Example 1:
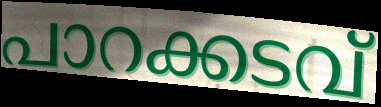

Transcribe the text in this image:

പാറക്കടവ്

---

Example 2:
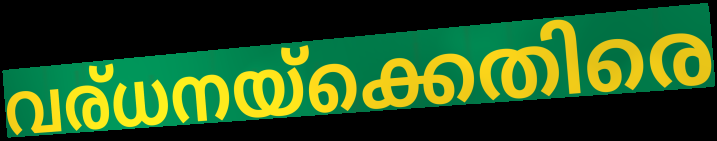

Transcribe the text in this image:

വര്ധനയ്ക്കെതിരെ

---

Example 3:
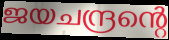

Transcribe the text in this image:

ജയചന്ദ്രന്റെ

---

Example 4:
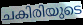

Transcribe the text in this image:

ചകിരിയുടെ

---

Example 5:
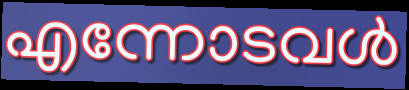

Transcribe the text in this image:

എന്നോടവൾ